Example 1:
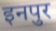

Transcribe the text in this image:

इनपुर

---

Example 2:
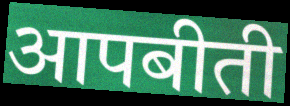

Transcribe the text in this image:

आपबीती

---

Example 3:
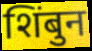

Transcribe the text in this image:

शिंबुन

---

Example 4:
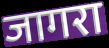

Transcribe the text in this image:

जागरा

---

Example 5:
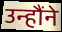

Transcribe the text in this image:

उन्हौंने